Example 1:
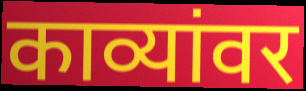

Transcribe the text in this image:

काव्यांवर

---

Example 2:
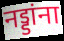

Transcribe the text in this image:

नड्डांना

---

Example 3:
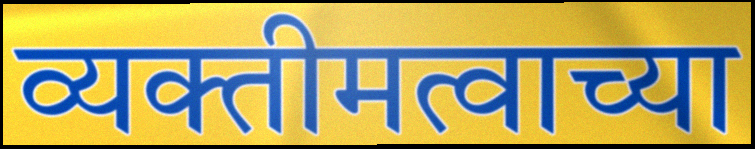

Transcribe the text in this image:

व्यक्तीमत्वाच्या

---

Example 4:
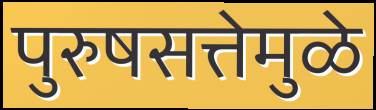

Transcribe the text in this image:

पुरुषसत्तेमुळे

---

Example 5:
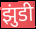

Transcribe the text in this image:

झुंडी